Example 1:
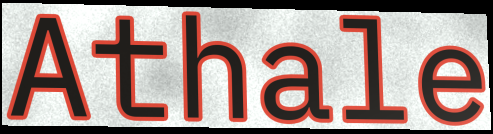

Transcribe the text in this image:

Athale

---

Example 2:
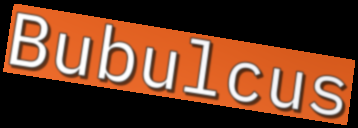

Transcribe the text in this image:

Bubulcus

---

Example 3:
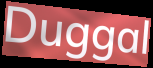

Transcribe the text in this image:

Duggal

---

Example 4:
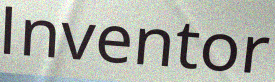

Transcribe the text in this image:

Inventor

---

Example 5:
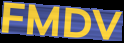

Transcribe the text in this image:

FMDV